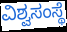
ವಿಶ್ವಸಂಸ್ಥೆ